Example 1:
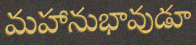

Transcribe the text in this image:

మహానుభావుడూ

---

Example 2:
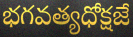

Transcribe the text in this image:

భగవత్యధోక్షజే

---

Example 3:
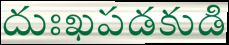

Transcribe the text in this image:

దుఃఖపడకుడి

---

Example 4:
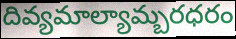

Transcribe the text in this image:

దివ్యమాల్యామ్బరధరం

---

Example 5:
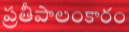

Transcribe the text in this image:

ప్రతీపాలంకారం